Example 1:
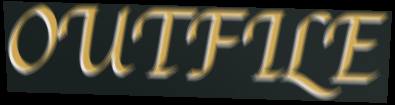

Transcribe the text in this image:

OUTFILE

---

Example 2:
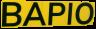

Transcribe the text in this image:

BAPIO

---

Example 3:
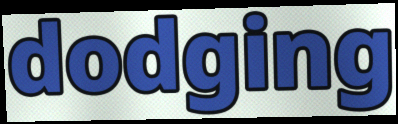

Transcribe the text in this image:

dodging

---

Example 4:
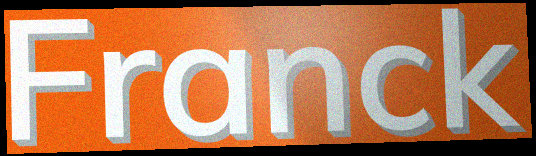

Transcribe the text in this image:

Franck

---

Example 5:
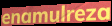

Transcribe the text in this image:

enamulreza